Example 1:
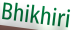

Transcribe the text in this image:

Bhikhiri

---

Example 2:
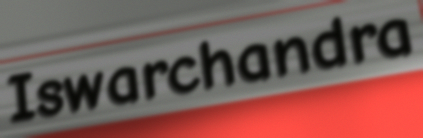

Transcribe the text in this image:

Iswarchandra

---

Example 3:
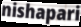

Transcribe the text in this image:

nishapari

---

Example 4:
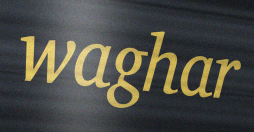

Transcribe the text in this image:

waghar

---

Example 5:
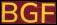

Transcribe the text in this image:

BGF